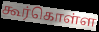
கூர்கொள்ள